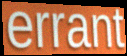
errant